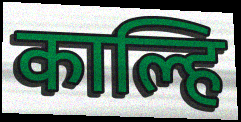
काल्हि